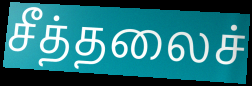
சீத்தலைச்